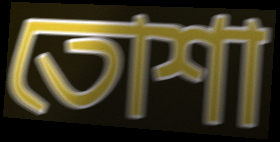
তোশা